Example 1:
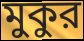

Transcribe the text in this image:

মুকুর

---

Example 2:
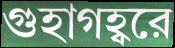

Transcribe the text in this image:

গুহাগহ্বরে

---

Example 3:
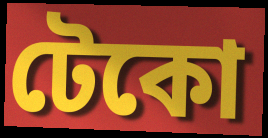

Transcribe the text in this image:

টেকো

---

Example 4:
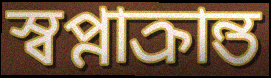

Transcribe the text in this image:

স্বপ্নাক্রান্ত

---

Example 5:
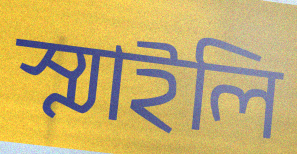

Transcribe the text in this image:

স্মাইলি